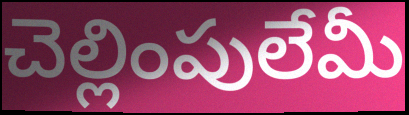
చెల్లింపులేమీ